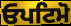
ਓਪਟਿਮੋ